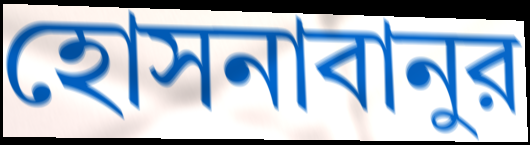
হোসনাবানুর